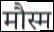
मौस्म